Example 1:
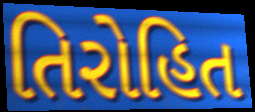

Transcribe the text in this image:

તિરોહિત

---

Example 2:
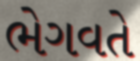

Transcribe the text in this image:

ભેગવતે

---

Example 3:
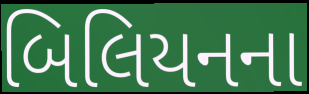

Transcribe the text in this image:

બિલિયનના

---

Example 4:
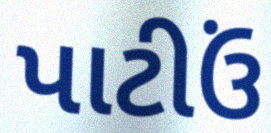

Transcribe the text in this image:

પાટીઉં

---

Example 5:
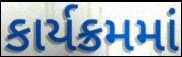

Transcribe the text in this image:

કાર્યક્રમમાં